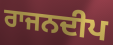
ਰਾਜਨਦੀਪ